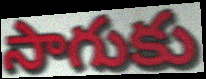
సాగుకు